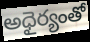
అధైర్యంతో